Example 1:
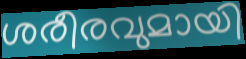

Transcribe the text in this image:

ശരീരവുമായി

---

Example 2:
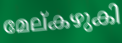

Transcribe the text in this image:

മേല്കഴുകി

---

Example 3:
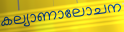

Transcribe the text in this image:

കല്യാണാലോചന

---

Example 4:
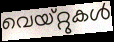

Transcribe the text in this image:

വെയ്റ്റുകൾ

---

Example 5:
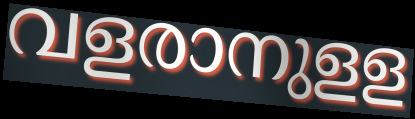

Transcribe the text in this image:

വളരാനുളള